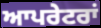
ਆਪਰੇਟਰਾਂ